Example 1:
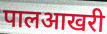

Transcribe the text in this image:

पालआखरी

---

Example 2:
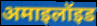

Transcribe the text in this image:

अमाइलॉइड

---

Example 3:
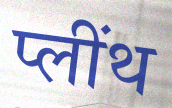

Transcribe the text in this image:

प्लींथ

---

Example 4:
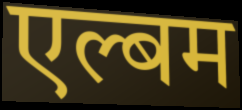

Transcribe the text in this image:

एल्बम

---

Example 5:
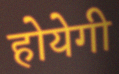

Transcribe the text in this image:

होयेगी